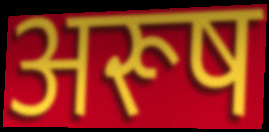
अरूष